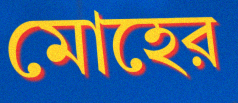
মোহের